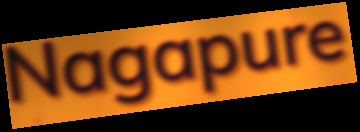
Nagapure